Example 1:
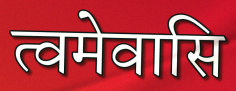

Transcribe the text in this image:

त्वमेवासि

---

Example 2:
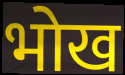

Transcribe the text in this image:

भोख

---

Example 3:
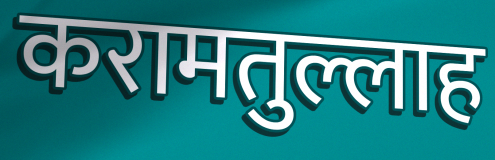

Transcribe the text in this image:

करामतुल्लाह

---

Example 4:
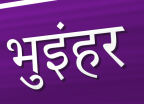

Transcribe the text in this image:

भुइंहर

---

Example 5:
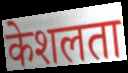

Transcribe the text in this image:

केशलता